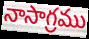
నాసాగ్రము